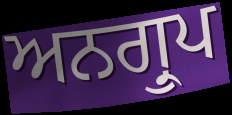
ਅਨਗ੍ਰੁਪ